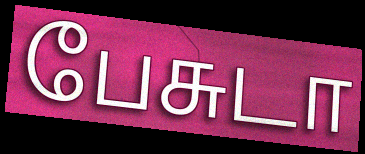
பேசுடா